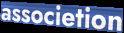
associetion